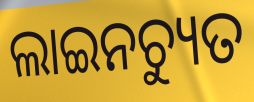
ଲାଇନଚ୍ୟୁତ